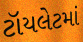
ટૉયલેટમાં